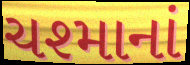
ચશ્માનાં